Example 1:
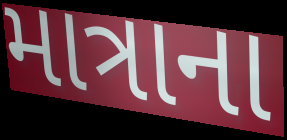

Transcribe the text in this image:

માત્રાના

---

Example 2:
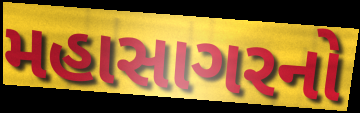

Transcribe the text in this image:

મહાસાગરનો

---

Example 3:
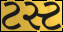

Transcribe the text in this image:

ટસ્ટ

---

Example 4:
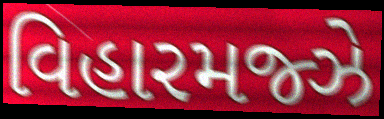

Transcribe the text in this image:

વિહારમજ્ઝે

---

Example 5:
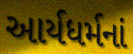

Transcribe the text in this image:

આર્યધર્મનાં